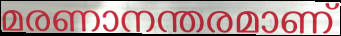
മരണാനന്തരമാണ്